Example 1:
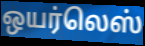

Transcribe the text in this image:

ஒயர்லெஸ்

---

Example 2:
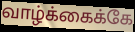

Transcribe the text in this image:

வாழ்க்கைக்கே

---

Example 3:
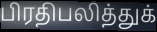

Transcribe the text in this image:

பிரதிபலித்துக்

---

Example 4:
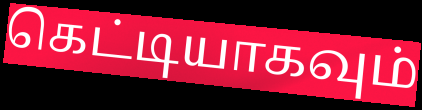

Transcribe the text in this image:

கெட்டியாகவும்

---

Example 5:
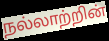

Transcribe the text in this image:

நல்லாற்றின்